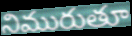
నిమురుతూ